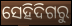
ସେହିଦିଗରୁ